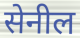
सेनील